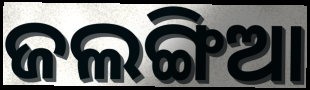
ଜଲଙ୍ଗିଆ